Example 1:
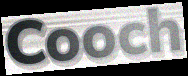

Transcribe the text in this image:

Cooch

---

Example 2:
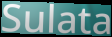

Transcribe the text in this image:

Sulata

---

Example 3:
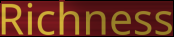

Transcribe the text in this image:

Richness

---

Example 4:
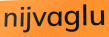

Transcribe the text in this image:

nijvaglu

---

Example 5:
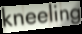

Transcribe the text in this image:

kneeling